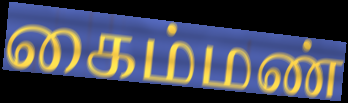
கைம்மண்